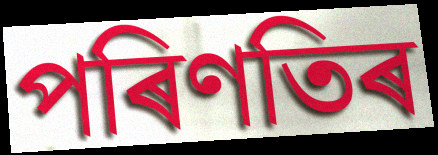
পৰিণতিৰ